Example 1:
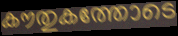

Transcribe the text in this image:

കൗതുകത്തോടെ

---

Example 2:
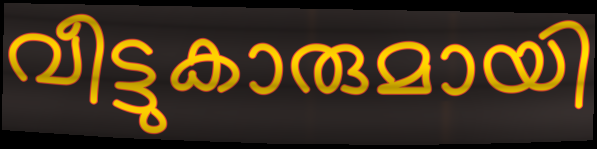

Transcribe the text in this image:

വീട്ടുകാരുമായി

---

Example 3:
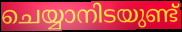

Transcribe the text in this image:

ചെയ്യാനിടയുണ്ട്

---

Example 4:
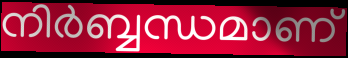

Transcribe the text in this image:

നിർബ്ബന്ധമാണ്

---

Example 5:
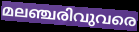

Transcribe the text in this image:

മലഞ്ചരിവുവരെ